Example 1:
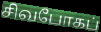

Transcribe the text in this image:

சிவபோகப்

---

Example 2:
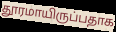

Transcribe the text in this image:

தூரமாயிருப்பதாக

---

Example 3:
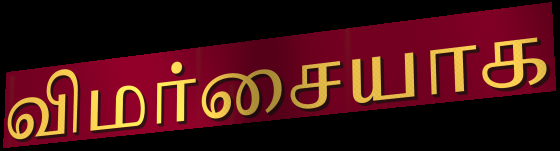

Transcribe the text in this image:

விமர்சையாக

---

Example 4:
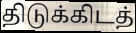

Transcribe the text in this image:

திடுக்கிடத்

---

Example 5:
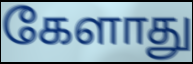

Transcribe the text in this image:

கேளாது